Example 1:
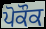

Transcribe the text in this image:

ਪੋਕੌਕ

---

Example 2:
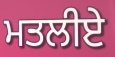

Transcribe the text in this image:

ਮਤਲੀਏ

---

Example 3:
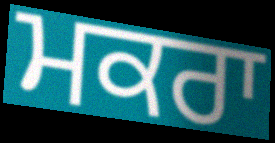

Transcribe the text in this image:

ਮਕਰਾ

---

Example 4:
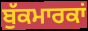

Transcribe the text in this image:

ਬੁੱਕਮਾਰਕਾਂ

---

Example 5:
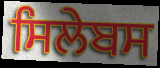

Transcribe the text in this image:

ਸਿਲੇਬਸ